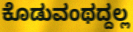
ಕೊಡುವಂಥದ್ದಲ್ಲ